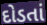
દોડતાં